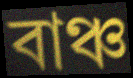
বাঞ্চ